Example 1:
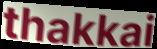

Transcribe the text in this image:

thakkai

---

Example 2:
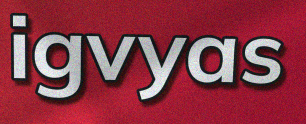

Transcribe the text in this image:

igvyas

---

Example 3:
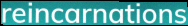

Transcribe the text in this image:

reincarnations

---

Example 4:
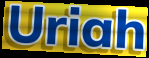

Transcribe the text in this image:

Uriah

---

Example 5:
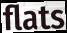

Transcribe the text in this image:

flats